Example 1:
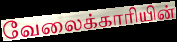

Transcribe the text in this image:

வேலைக்காரியின்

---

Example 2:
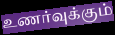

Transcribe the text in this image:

உணர்வுக்கும்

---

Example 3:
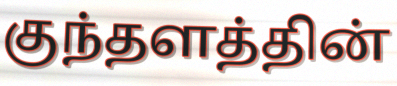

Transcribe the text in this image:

குந்தளத்தின்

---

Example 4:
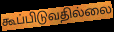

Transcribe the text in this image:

கூப்பிடுவதில்லை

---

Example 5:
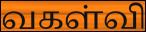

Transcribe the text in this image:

வகள்வி